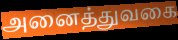
அனைத்துவகை